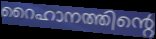
റൈഹാനത്തിന്റെ